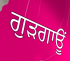
ਗੁੜਗਾਊਂ